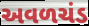
અવળચંડ